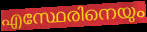
എസ്ഥേരിനെയും